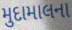
મુદામાલના